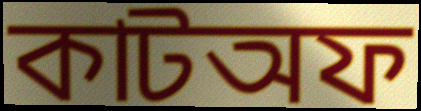
কাটঅফ